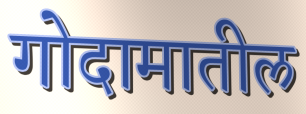
गोदामातील